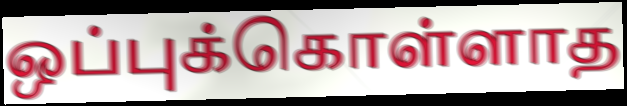
ஒப்புக்கொள்ளாத